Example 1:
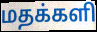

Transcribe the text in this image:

மதக்களி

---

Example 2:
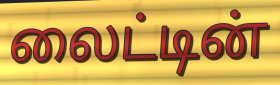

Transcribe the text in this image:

லைட்டின்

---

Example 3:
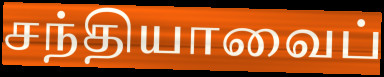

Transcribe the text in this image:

சந்தியாவைப்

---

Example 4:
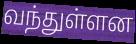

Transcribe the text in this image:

வந்துள்ளன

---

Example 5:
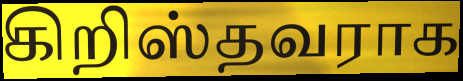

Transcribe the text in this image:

கிறிஸ்தவராக